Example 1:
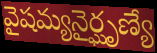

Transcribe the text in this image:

వైషమ్యనైర్ఘృణ్యే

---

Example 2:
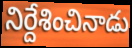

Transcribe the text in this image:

నిర్దేశించినాడు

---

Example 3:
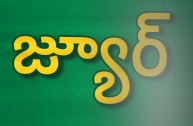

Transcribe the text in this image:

జ్యూర్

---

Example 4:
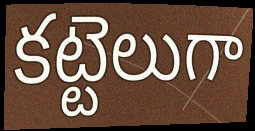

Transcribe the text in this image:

కట్టెలుగా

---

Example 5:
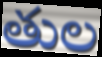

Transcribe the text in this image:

తుల